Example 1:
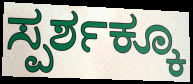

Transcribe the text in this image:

ಸ್ಪರ್ಶಕ್ಕೂ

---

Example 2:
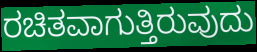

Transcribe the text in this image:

ರಚಿತವಾಗುತ್ತಿರುವುದು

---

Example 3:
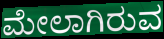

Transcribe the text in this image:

ಮೇಲಾಗಿರುವ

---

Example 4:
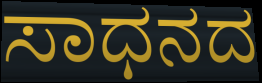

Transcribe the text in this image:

ಸಾಧನದ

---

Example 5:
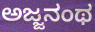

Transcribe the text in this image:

ಅಜ್ಜನಂಥ